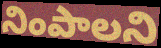
నింపాలని